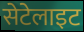
सेटेलाइट